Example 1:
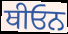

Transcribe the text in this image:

ਥੀਓਨ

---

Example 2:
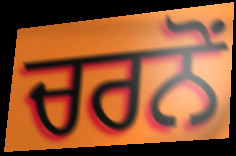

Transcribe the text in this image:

ਚਰਨੋਂ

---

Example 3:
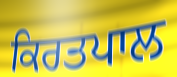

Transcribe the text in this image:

ਕਿਰਤਪਾਲ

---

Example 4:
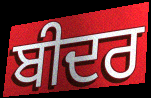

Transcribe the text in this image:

ਬੀਦਰ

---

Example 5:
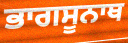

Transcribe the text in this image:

ਭਾਗਸੂਨਾਥ